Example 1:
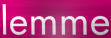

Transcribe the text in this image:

lemme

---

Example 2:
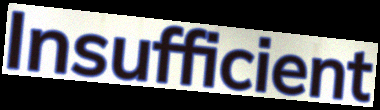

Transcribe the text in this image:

Insufficient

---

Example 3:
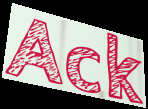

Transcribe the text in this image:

Ack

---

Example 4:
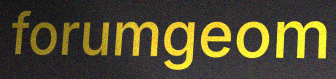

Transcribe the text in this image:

forumgeom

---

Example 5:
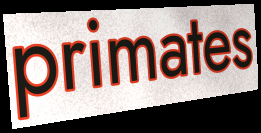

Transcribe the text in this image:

primates